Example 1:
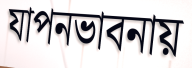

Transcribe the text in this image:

যাপনভাবনায়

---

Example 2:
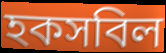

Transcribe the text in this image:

হকসবিল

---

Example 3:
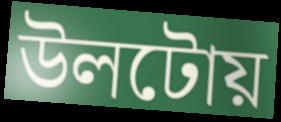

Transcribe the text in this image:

উলটোয়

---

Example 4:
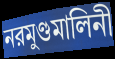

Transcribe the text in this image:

নরমুণ্ডমালিনী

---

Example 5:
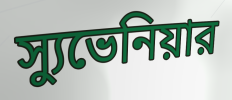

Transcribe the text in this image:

স্যুভেনিয়ার